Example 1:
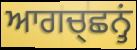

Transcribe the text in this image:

ਆਗਚ੍ਛਨ੍ਤਂ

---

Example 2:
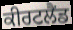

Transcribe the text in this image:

ਕੀਰਟਲੈਂਡ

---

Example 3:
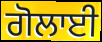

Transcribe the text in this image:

ਗੋਲਾਈ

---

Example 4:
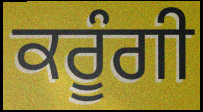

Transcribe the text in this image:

ਕਰੂੰਗੀ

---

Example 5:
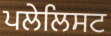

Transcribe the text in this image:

ਪਲੇਲਿਸਟ